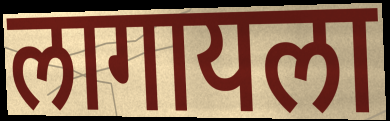
लागायला